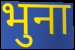
भुना